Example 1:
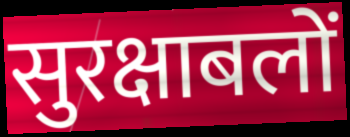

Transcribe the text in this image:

सुरक्षाबलों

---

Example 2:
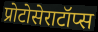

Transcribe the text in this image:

प्रोटोसेराटॉप्स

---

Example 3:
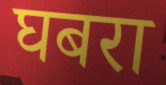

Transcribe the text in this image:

घबरा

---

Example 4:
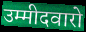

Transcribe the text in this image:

उम्मीदवारो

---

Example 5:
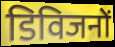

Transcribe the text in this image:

डिविजनों